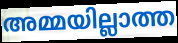
അമ്മയില്ലാത്ത